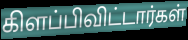
கிளப்பிவிட்டார்கள்